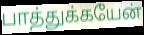
பாத்துக்கயேன்